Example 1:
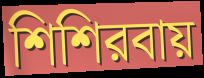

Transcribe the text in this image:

শিশিরবায়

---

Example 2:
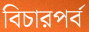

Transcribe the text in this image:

বিচারপর্ব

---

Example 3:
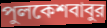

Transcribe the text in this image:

পুলকেশবাবুর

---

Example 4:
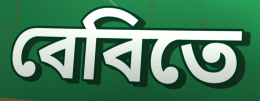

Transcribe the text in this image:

বেবিতে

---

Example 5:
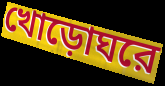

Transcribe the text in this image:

খোড়োঘরে